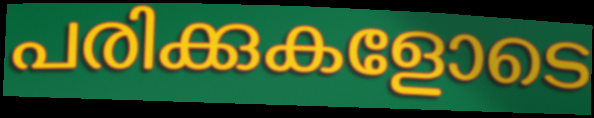
പരിക്കുകളോടെ